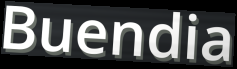
Buendia